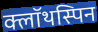
क्लॉथस्पिन